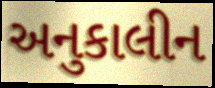
અનુકાલીન